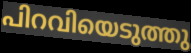
പിറവിയെടുത്തു